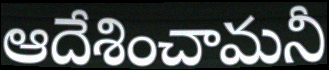
ఆదేశించామనీ